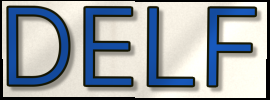
DELF